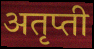
अतृप्ती